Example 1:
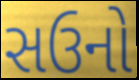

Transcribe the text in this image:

સઉનો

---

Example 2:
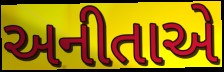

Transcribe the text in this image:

અનીતાએ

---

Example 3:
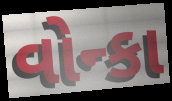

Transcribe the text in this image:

વોન્કા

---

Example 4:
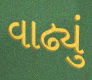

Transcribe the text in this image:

વાઢ્યું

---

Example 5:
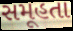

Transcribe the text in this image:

સમૂહતા